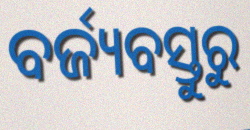
ବର୍ଜ୍ୟବସ୍ତୁରୁ